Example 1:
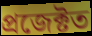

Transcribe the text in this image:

প্ৰজেক্টত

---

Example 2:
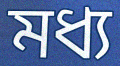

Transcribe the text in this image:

মধ্য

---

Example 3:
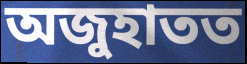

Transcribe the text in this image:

অজুহাতত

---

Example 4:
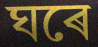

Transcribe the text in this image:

ঘৰে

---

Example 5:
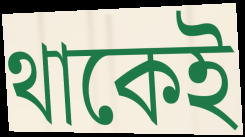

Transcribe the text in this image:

থাকেই